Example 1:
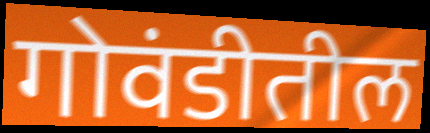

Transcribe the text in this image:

गोवंडीतील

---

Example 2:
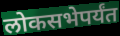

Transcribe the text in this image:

लोकसभेपर्यंत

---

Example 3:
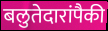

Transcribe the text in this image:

बलुतेदारांपैकी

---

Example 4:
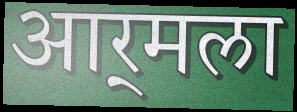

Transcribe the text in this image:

आर्मला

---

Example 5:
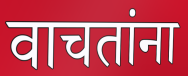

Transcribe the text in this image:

वाचतांना